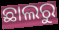
ଛାଲରୁ